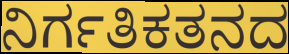
ನಿರ್ಗತಿಕತನದ